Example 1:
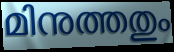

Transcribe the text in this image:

മിനുത്തതും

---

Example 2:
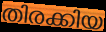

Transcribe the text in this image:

തിരക്കിയ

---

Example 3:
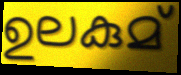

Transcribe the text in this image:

ഉലകുമ്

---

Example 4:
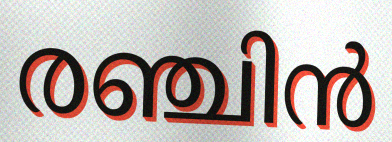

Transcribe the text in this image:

രഞ്ചിൻ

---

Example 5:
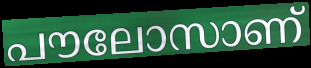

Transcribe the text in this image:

പൗലോസാണ്